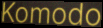
Komodo